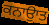
ਕਨਾਉਾਤ